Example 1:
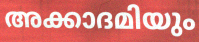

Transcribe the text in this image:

അക്കാദമിയും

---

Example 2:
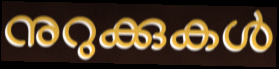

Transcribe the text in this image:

നുറുക്കുകൾ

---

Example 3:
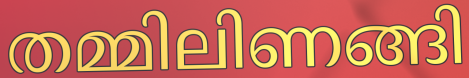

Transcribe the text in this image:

തമ്മിലിണങ്ങി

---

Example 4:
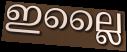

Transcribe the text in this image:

ഇല്ലൈ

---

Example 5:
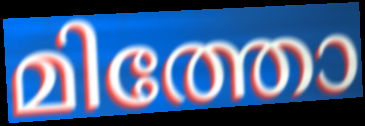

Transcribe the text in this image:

മിത്തോ